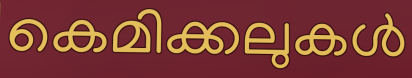
കെമിക്കലുകൾ